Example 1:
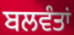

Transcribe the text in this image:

ਬਲਵੰਤਾਂ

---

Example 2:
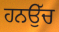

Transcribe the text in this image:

ਹਨਉੱਚ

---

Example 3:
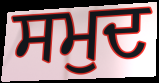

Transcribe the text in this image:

ਸਮੁਦ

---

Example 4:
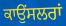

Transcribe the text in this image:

ਕਾਉਂਸਲਰਾਂ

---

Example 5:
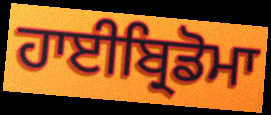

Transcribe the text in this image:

ਹਾਈਬ੍ਰਿਡੋਮਾ